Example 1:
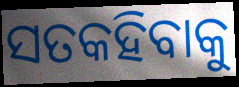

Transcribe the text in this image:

ସତକହିବାକୁ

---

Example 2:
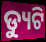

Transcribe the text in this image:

ଡ୍ୟୁଟି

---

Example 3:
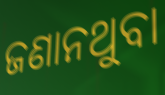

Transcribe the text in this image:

ଜଣାନଥୁବା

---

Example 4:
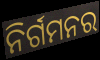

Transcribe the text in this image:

ନିର୍ଗମନର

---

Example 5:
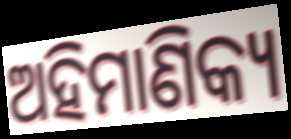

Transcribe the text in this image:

ଅହିମାଣିକ୍ୟ